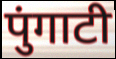
पुंगाटी